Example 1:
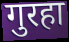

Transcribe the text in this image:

गुरहा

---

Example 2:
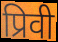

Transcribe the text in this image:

प्रिवी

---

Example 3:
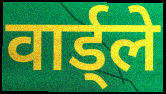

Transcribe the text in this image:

वार्ड्ले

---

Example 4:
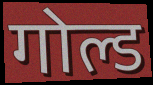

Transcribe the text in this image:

गोल्‍ड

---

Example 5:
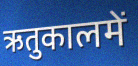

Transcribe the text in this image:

ऋतुकालमें